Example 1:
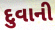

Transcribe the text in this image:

દુવાની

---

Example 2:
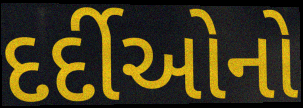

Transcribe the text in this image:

દર્દીઓનો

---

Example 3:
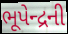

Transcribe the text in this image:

ભૂપેન્દ્રની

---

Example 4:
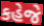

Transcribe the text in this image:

કહેજે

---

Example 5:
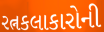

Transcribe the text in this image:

રત્નકલાકારોની